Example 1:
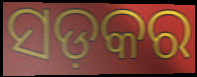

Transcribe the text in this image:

ସଡ଼କର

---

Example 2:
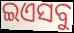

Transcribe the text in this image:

ଇଏସବୁ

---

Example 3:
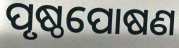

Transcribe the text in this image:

ପୃଷ୍ଠପୋଷଣ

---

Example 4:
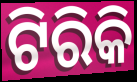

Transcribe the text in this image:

ଟିରିକି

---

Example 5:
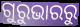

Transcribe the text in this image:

ଗୁରୁଭାରରୁ